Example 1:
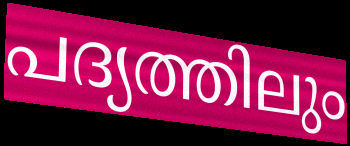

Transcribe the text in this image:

പദ്യത്തിലും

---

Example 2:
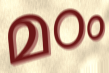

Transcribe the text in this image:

മഠം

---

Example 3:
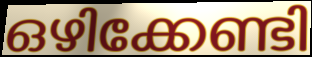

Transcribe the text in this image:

ഒഴിക്കേണ്ടി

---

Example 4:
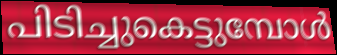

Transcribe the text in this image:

പിടിച്ചുകെട്ടുമ്പോൾ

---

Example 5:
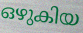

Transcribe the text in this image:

ഒഴുകിയ